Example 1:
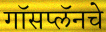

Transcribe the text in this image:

गॉसप्लॅनचे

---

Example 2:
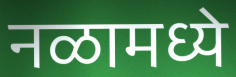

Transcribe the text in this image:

नळामध्ये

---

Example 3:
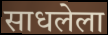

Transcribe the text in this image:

साधलेला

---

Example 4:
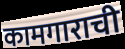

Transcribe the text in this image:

कामगाराची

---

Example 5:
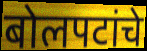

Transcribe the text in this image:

बोलपटांचे